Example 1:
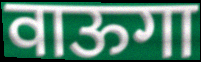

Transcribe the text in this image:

वाऊगा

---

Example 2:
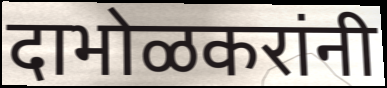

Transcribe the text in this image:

दाभोळकरांनी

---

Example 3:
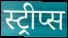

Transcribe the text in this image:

स्ट्रीप्स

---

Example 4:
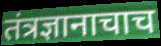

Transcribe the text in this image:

तंत्रज्ञानाचाच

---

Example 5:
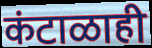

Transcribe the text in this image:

कंटाळाही